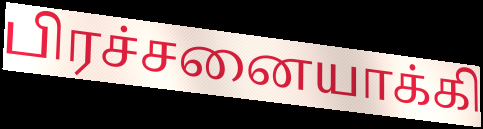
பிரச்சனையாக்கி